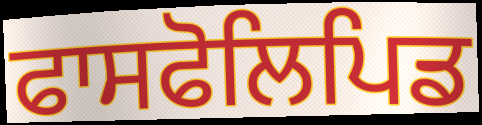
ਫਾਸਫੋਲਿਪਿਡ